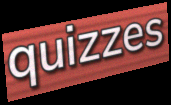
quizzes